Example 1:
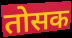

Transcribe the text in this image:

तोसक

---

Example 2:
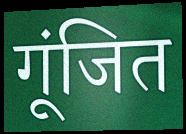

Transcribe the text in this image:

गूंजित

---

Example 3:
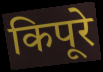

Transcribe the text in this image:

किपूरे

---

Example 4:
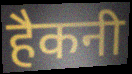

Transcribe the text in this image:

हैकनी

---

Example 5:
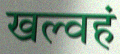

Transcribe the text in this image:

खल्वहं